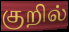
குறில்